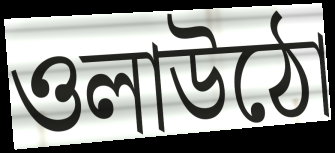
ওলাউঠো